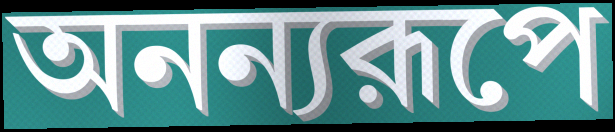
অনন্যরূপে